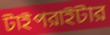
টাইপরাইটার